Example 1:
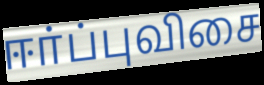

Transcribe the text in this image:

ஈர்ப்புவிசை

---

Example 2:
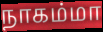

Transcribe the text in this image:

நாகம்மா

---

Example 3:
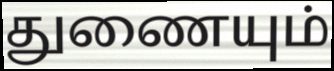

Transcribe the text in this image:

துணையும்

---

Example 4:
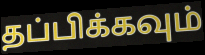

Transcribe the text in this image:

தப்பிக்கவும்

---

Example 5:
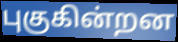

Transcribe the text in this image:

புகுகின்றன